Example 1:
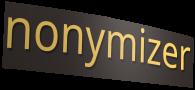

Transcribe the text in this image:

nonymizer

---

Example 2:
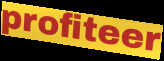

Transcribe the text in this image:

profiteer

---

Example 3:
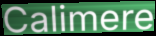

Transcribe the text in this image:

Calimere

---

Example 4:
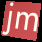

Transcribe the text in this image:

jm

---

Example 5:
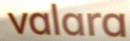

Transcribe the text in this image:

valara